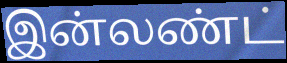
இன்லண்ட்